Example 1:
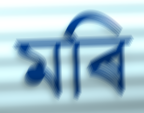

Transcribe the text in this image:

মৰি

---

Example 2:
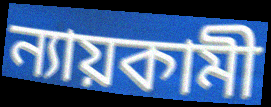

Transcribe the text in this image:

ন্যায়কামী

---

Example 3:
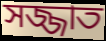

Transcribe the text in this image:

সজ্জাত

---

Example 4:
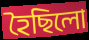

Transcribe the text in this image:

হৈছিলো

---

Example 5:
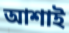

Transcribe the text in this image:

আশাই